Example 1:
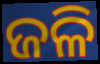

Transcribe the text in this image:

ଜଳି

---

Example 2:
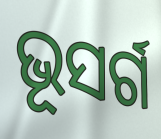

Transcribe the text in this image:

ଭୂସର୍ଗ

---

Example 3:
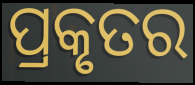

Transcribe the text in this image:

ପ୍ରକୃତର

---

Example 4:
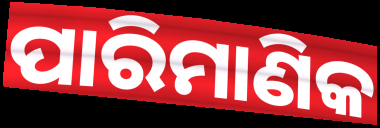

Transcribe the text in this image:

ପାରିମାଣିକ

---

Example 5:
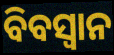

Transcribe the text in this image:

ବିବସ୍ୱାନ